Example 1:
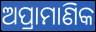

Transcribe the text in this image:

ଅପ୍ରାମାଣିକ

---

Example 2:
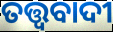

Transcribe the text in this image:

ତତ୍ତ୍ଵବାଦୀ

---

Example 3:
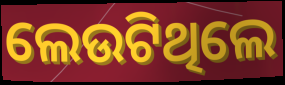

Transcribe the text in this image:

ଲେଉଟିଥିଲେ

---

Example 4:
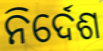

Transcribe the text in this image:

ନିର୍ଦେଶ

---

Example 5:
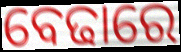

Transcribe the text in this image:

ବେଢାରେ